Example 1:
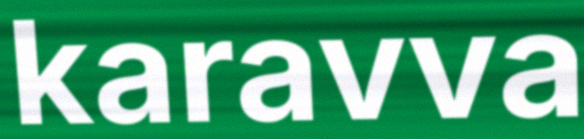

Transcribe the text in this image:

karavva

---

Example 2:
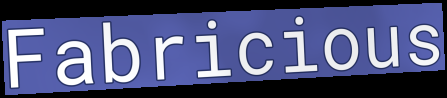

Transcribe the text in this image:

Fabricious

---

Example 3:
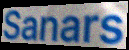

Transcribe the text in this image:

Sanars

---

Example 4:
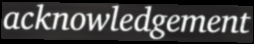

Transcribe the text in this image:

acknowledgement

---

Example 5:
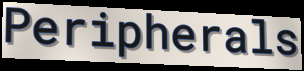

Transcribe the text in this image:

Peripherals